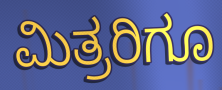
ಮಿತ್ರರಿಗೂ